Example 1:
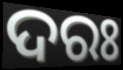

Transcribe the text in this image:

ଦରଃ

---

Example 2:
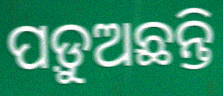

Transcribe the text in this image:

ପଡ଼ୁଅଛନ୍ତି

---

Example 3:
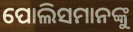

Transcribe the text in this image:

ପୋଲିସମାନଙ୍କୁ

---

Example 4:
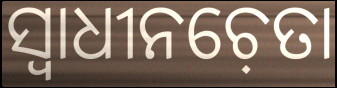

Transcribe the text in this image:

ସ୍ୱାଧୀନଚ଼େତା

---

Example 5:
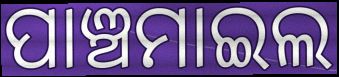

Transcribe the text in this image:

ପାଞ୍ଚମାଇଲ